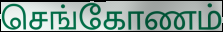
செங்கோணம்